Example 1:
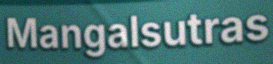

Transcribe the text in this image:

Mangalsutras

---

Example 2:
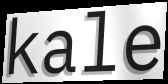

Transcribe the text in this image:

kale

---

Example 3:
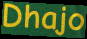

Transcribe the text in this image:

Dhajo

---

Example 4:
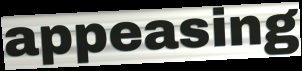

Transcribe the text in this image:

appeasing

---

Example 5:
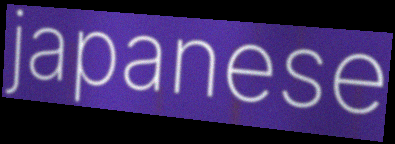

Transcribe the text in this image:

japanese